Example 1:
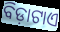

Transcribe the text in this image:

ବିଡ଼ାଟାଏ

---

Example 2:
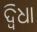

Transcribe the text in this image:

ଦ୍ବିଧା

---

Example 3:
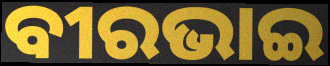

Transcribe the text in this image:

ବୀରଭାଇ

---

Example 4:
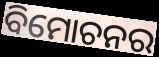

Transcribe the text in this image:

ବିମୋଚନର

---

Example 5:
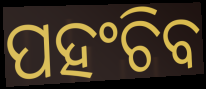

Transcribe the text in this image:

ପହଂଚିବ